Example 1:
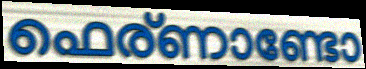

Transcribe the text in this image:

ഫെര്ണാണ്ടോ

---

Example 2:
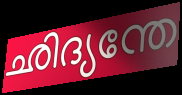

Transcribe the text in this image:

ഛിദ്യന്തേ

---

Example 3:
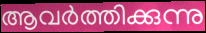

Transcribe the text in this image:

ആവർത്തിക്കുന്നു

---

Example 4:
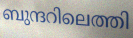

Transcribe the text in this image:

ബുന്ദറിലെത്തി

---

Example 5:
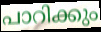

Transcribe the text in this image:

പാറിക്കും